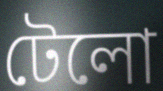
টেলো